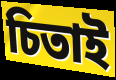
চিতাই